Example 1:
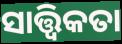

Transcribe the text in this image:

ସାତ୍ତ୍ଵିକତା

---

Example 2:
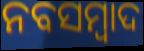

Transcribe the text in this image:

ନବସମ୍ବାଦ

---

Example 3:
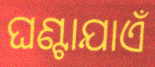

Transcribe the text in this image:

ଘଣ୍ଟାଯାଏଁ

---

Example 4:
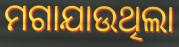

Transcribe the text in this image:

ମଗାଯାଉଥିଲା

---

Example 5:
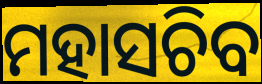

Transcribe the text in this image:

ମହାସଚିବ